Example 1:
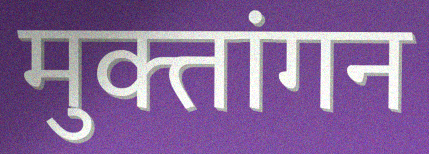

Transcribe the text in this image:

मुक्तांगन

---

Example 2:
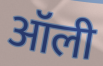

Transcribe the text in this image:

ऑली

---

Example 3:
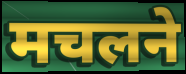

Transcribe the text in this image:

मचलने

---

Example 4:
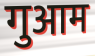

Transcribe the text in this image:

गुआम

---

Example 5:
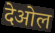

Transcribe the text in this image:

देओल